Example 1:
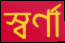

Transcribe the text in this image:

স্বর্ণা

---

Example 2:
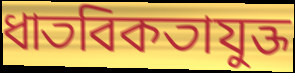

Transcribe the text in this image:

ধাতবিকতাযুক্ত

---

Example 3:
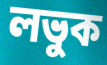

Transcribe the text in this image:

লভুক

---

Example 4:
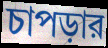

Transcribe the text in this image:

চাপড়ার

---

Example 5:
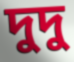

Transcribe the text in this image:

দুদু